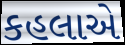
કહલાએ